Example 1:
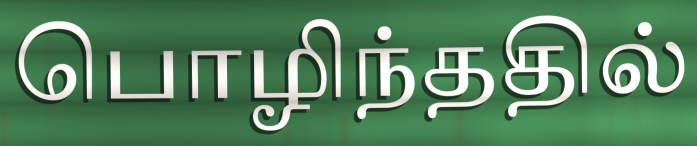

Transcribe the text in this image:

பொழிந்ததில்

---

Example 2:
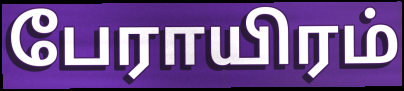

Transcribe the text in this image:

பேராயிரம்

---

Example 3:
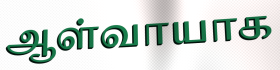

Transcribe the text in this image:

ஆள்வாயாக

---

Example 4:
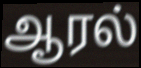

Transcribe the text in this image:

ஆரல்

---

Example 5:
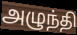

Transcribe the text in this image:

அழுந்தி